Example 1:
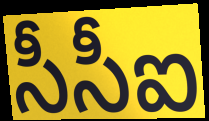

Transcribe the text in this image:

సీసీఐ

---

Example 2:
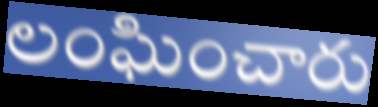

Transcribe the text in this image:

లంఘించారు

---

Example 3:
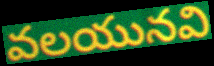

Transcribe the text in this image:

వలయునవి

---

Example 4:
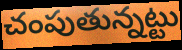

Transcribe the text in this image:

చంపుతున్నట్టు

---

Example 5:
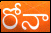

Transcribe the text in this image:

రోనా